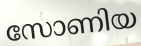
സോണിയ